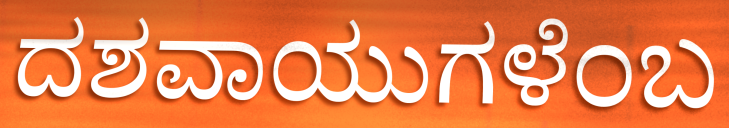
ದಶವಾಯುಗಳೆಂಬ